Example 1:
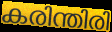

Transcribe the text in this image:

കരിന്തിരി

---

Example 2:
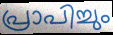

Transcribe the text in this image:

പ്രാപിച്ചും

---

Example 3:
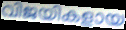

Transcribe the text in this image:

വിജയികളായ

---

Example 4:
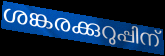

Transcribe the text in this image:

ശങ്കരക്കുറുപ്പിന്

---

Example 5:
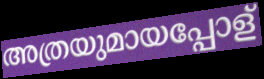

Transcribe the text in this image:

അത്രയുമായപ്പോള്